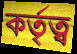
কৰ্তৃত্ব